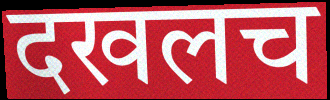
दखलच